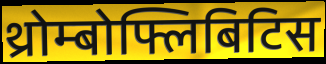
थ्रोम्बोफ्लिबिटिस